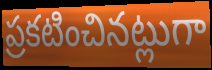
ప్రకటించినట్లుగా